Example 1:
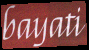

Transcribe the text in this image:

bayati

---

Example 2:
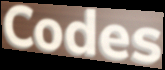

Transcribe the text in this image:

Codes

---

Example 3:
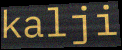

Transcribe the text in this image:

kalji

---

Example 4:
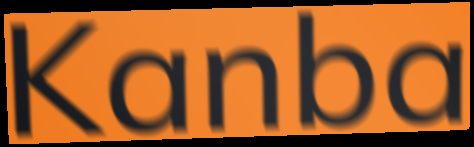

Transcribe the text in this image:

Kanba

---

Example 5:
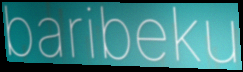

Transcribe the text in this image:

baribeku